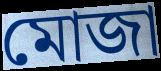
মোজা